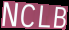
NCLB